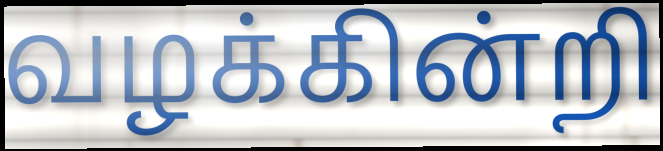
வழக்கின்றி